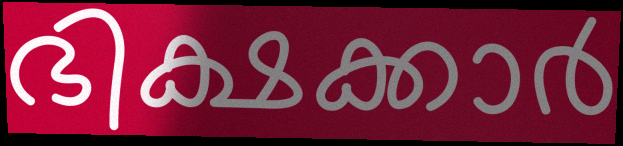
ഭിക്ഷക്കാർ